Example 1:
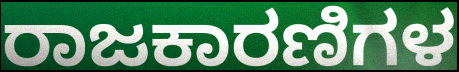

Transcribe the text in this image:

ರಾಜಕಾರಣಿಗಳ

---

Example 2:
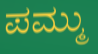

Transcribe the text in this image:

ಪಮ್ಮು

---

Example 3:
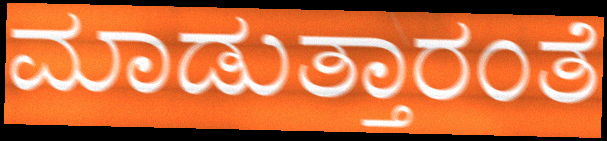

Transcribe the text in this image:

ಮಾಡುತ್ತಾರಂತೆ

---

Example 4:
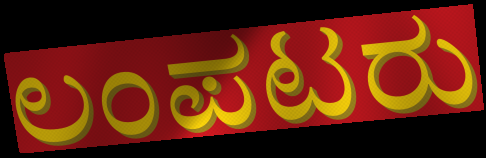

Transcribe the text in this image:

ಲಂಪಟರು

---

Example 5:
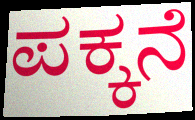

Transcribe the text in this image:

ಪಕ್ಕನೆ